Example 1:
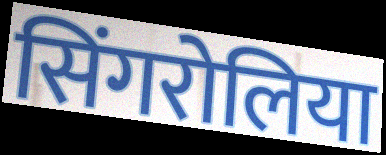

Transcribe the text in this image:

सिंगरोलिया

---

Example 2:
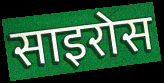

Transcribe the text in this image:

साइरोस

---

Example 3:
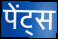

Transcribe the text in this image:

पेंट्स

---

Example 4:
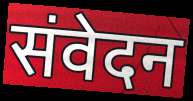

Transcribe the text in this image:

संवेदन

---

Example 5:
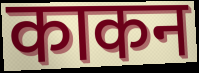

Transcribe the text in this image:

काकन